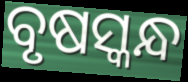
ବୃଷସ୍କନ୍ଧ